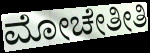
ಮೋಚೇತೀತಿ